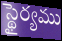
స్థైర్యము